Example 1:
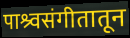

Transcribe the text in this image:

पाश्र्वसंगीतातून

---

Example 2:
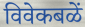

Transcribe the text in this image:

विवेकबळें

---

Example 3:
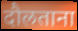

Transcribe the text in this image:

दौलताना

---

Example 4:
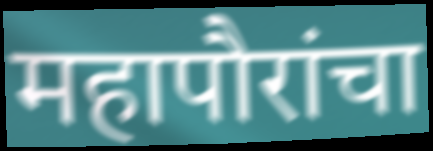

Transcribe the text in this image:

महापौरांचा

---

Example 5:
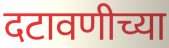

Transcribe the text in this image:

दटावणीच्या